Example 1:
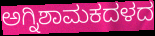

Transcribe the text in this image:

ಅಗ್ನಿಶಾಮಕದಳದ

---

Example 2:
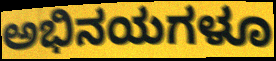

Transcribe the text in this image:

ಅಭಿನಯಗಳೂ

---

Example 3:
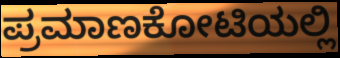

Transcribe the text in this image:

ಪ್ರಮಾಣಕೋಟಿಯಲ್ಲಿ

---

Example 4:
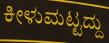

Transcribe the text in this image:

ಕೀಳುಮಟ್ಟದ್ದು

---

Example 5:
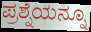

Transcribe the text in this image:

ಪ್ರಶ್ನೆಯನ್ನೂ